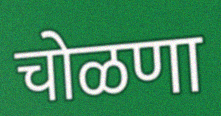
चोळणा